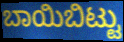
ಬಾಯಿಬಿಟ್ಟು